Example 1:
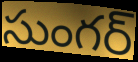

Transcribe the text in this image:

సుంగర్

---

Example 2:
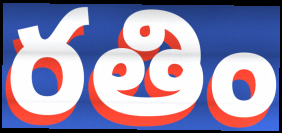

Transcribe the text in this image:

రతిం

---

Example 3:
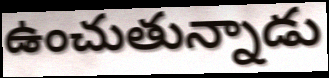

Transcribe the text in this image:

ఉంచుతున్నాడు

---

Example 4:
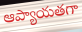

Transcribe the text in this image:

ఆప్యాయతగా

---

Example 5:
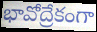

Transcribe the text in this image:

భావోద్రేకంగా